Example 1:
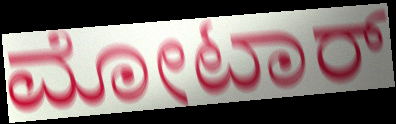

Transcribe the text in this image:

ಮೋಟಾರ್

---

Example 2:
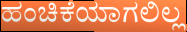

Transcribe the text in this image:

ಹಂಚಿಕೆಯಾಗಲಿಲ್ಲ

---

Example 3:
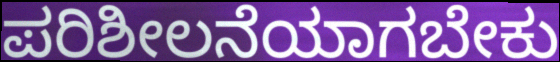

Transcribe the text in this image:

ಪರಿಶೀಲನೆಯಾಗಬೇಕು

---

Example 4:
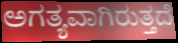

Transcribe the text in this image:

ಅಗತ್ಯವಾಗಿರುತ್ತದೆ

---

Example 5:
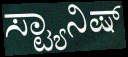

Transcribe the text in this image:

ಸ್ಟ್ಯಾನಿಷ್